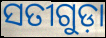
ସତୀଗୁଡ଼ା